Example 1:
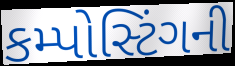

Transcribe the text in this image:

કમ્પોસ્ટિંગની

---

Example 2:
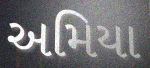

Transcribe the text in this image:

અમિયા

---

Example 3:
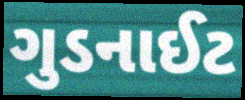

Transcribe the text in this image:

ગુડનાઈટ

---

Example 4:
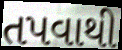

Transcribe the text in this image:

તપવાથી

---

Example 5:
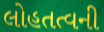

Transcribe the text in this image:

લોહતત્વની